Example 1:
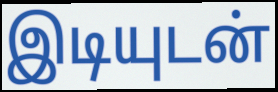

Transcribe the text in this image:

இடியுடன்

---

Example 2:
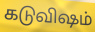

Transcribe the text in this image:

கடுவிஷம்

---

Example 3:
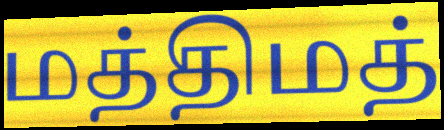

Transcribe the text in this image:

மத்திமத்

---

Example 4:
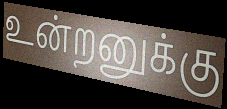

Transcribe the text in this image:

உன்றனுக்கு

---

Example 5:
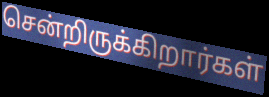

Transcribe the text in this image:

சென்றிருக்கிறார்கள்